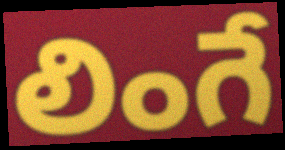
లింగే